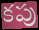
కపు